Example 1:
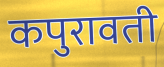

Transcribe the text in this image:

कपुरावती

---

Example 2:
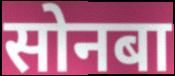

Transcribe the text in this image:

सोनबा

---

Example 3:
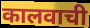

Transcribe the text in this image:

कालवाची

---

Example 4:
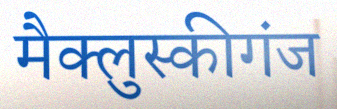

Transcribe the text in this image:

मैक्लुस्कीगंज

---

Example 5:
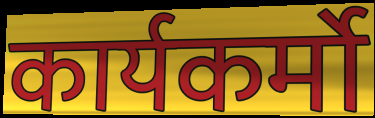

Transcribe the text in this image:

कार्यकर्मो